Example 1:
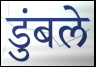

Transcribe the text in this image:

डुंबले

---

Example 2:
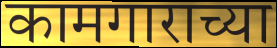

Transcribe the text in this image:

कामगाराच्या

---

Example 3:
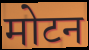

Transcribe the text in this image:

मोटन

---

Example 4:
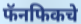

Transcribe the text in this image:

फॅनफिकचे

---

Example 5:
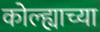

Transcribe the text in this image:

कोल्ह्याच्या